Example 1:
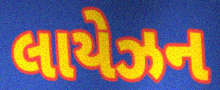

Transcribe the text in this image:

લાયેઝન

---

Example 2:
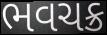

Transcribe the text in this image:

ભવચક્ર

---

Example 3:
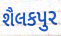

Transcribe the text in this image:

શૈલકપુર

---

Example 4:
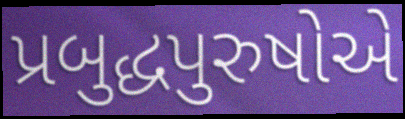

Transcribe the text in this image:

પ્રબુદ્ધપુરુષોએ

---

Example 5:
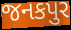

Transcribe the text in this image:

જનકપુર